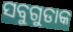
ସବୁଗୁଡାକ